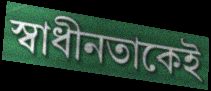
স্বাধীনতাকেই